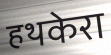
हथकेरा